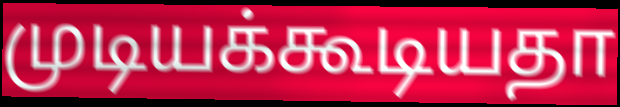
முடியக்கூடியதா